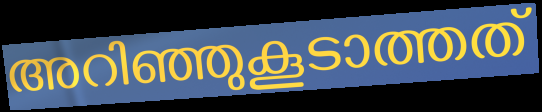
അറിഞ്ഞുകൂടാത്തത്